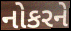
નોકરને